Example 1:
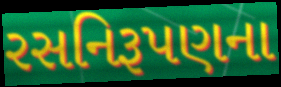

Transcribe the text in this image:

રસનિરૂપણના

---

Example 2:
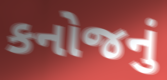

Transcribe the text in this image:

કનોજનું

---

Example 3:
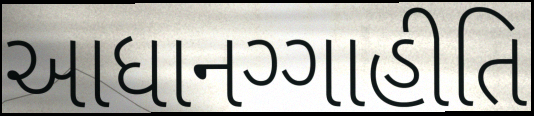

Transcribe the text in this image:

આધાનગ્ગાહીતિ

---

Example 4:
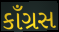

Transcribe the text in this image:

કાઁગ્રસ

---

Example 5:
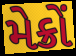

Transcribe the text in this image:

મેક્રોં